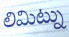
లిమిట్ను